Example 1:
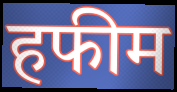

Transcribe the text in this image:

हफीम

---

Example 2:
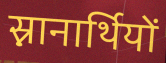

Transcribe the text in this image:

स्नानार्थियों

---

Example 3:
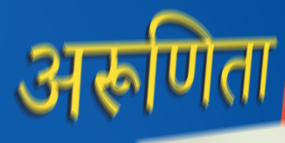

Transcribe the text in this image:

अरूणिता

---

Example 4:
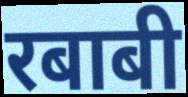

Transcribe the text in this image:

रबाबी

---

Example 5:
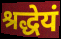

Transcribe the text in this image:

श्रद्धेयं